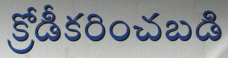
క్రోడీకరించబడి